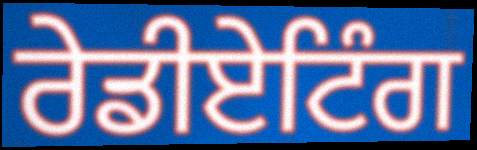
ਰੇਡੀਏਟਿੰਗ